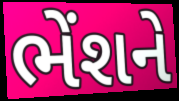
ભેંશને